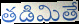
తడిమితే